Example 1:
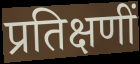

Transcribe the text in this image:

प्रतिक्षणीं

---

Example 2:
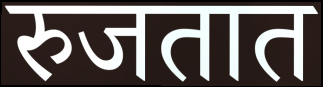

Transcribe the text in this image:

रुजतात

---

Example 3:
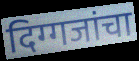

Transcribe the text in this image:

दिग्गजांचा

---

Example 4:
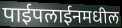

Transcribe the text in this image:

पाईपलाईनमधील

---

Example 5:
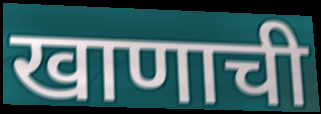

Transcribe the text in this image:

खाणाची